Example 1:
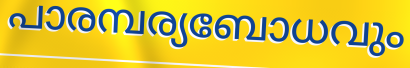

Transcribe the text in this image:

പാരമ്പര്യബോധവും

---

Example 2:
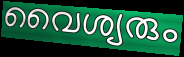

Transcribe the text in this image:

വൈശ്യരും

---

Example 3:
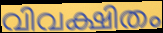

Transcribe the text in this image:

വിവക്ഷിതം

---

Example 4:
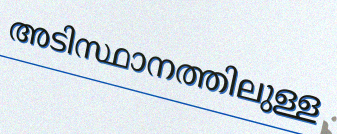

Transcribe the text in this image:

അടിസ്ഥാനത്തിലുള്ള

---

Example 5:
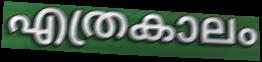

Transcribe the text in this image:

എത്രകാലം